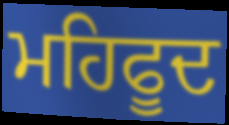
ਮਹਿਫੂਦ